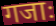
गजाः